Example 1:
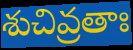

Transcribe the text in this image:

శుచివ్రతాః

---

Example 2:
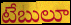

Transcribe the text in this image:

టేబులూ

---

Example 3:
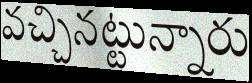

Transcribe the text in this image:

వచ్చినట్టున్నారు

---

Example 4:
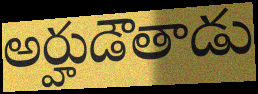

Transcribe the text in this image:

అర్హుడౌతాడు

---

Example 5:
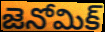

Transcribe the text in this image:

జెనోమిక్